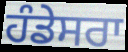
ਹੰਡੇਸਰਾ